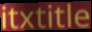
itxtitle